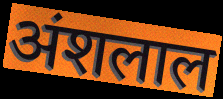
अंशलाल